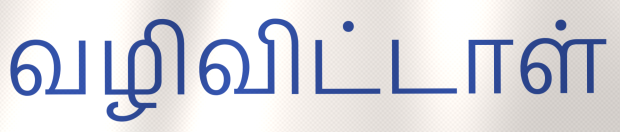
வழிவிட்டாள்